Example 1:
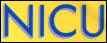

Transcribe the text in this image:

NICU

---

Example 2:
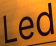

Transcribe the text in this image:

Led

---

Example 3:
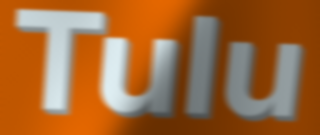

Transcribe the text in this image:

Tulu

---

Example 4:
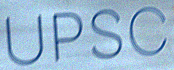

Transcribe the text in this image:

UPSC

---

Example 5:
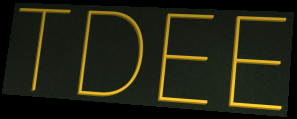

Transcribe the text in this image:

TDEE